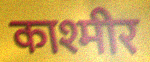
काश्मीर